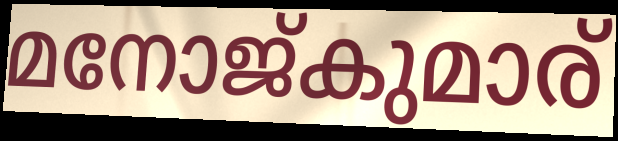
മനോജ്കുമാര്